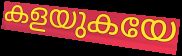
കളയുകയേ